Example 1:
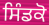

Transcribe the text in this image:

ਸਿੰਡਕੋ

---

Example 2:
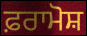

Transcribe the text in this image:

ਫ਼ਰਾਮੋਸ਼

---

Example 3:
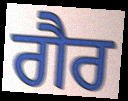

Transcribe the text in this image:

ਗੈਰ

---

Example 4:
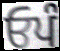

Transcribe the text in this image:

ਓਪੰ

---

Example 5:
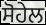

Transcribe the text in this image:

ਸੋਹੇਲ